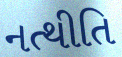
નત્થીતિ